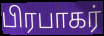
பிரபாகர்